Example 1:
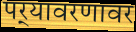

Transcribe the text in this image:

पर्यावरणावर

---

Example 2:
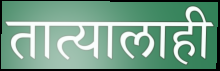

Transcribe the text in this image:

तात्यालाही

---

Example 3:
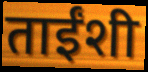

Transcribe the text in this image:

ताईंशी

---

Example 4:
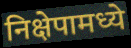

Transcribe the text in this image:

निक्षेपामध्ये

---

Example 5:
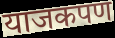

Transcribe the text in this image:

याजकपण